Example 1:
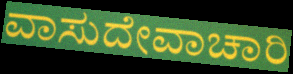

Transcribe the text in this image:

ವಾಸುದೇವಾಚಾರಿ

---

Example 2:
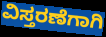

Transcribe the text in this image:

ವಿಸ್ತರಣೆಗಾಗಿ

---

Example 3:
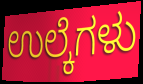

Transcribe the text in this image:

ಉಲ್ಕೆಗಳು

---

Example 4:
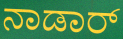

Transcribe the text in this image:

ನಾಡಾರ್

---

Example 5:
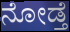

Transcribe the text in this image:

ನೋಡ್ತೆ